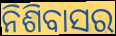
ନିଶିବାସର